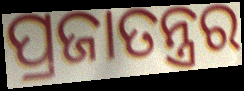
ପ୍ରଜାତନ୍ତ୍ରର